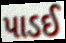
પાડઈ